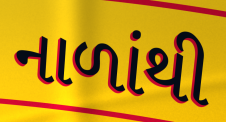
નાળાંથી